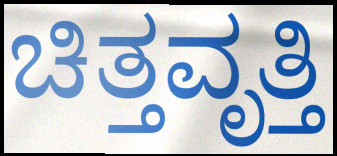
ಚಿತ್ತವೃತ್ತಿ